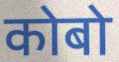
कोबो